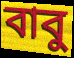
বাবু